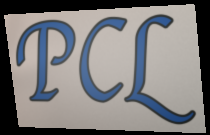
PCL